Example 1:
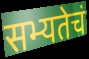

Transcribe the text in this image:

सभ्यतेचं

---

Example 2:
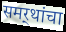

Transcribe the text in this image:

समर्थांचा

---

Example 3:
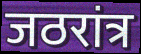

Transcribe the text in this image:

जठरांत्र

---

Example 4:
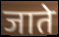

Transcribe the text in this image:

जाते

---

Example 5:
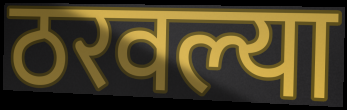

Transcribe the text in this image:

ठरवल्या